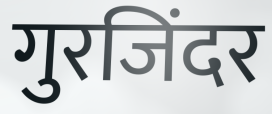
गुरजिंदर